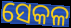
ସେକଳ